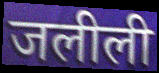
जलीली